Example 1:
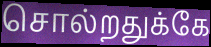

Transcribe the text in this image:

சொல்றதுக்கே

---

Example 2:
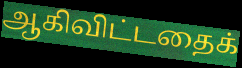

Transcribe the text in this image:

ஆகிவிட்டதைக்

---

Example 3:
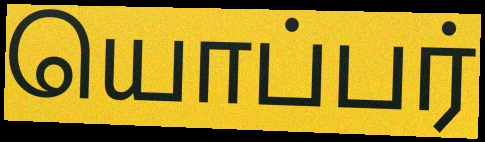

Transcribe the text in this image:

யொப்பர்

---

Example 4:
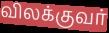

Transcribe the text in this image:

விலக்குவர்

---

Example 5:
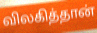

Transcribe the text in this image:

விலகித்தான்